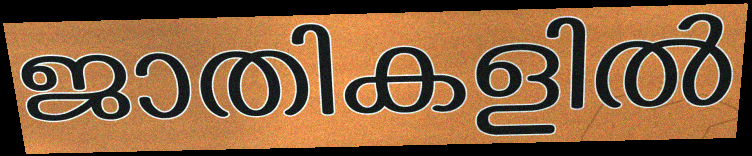
ജാതികളിൽ